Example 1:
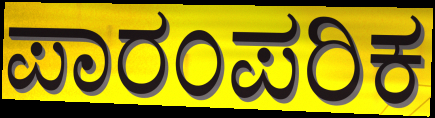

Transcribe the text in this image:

ಪಾರಂಪರಿಕ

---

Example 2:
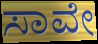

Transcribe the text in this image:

ಸಾವೇ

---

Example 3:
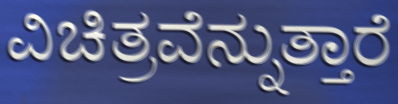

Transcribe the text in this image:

ವಿಚಿತ್ರವೆನ್ನುತ್ತಾರೆ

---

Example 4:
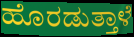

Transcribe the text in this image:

ಹೊರಡುತ್ತಾಳೆ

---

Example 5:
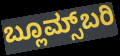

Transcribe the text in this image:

ಬ್ಲೂಮ್ಸ್‌ಬರಿ